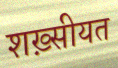
शख़्सीयत